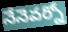
నేనెవర్నో